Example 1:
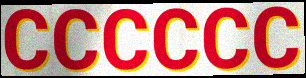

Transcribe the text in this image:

CCCCCC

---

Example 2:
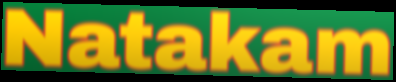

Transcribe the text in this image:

Natakam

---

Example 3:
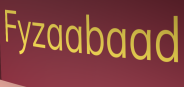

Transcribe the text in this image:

Fyzaabaad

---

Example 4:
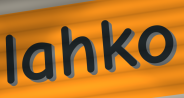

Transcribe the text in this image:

lahko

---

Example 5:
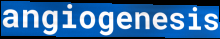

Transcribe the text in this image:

angiogenesis